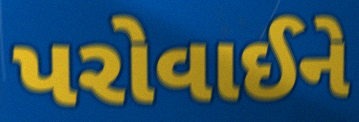
પરોવાઈને